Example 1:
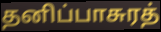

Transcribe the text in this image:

தனிப்பாசுரத்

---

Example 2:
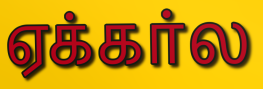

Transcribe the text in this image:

ஏக்கர்ல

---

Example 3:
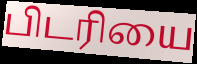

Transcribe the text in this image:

பிடரியை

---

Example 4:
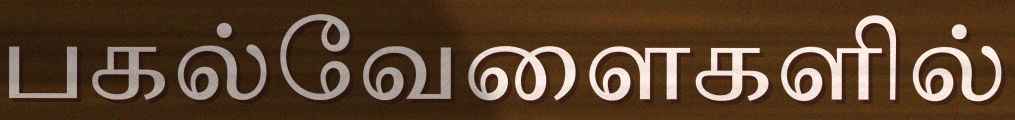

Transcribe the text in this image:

பகல்வேளைகளில்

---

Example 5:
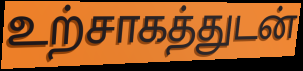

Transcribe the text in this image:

உற்சாகத்துடன்